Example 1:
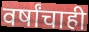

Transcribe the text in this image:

वर्षांचाही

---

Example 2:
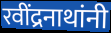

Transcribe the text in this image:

रवींद्रनाथांनी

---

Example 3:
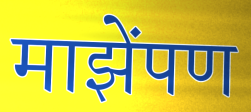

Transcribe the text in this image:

माझेंपण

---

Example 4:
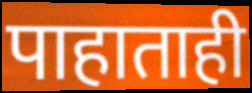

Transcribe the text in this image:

पाहाताही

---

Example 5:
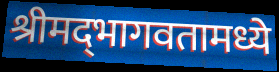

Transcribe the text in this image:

श्रीमद्‌भागवतामध्ये